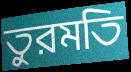
তুরমতি